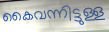
കൈവന്നിട്ടുള്ള